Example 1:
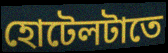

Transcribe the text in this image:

হোটেলটাতে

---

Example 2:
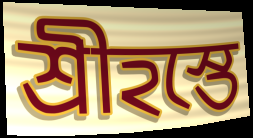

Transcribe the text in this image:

শ্রীহস্তে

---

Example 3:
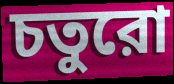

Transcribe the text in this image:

চতুরো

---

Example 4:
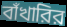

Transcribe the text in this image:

বাঁখারির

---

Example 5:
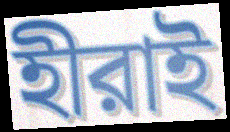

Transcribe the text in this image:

হীরাই